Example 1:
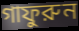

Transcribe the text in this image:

গাফুরুন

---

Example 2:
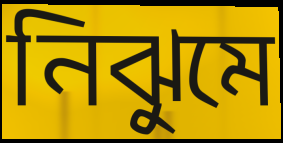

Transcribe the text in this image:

নিঝুমে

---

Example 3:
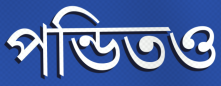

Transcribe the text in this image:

পন্ডিতও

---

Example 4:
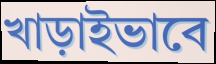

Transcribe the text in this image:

খাড়াইভাবে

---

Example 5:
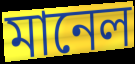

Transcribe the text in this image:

মানেল